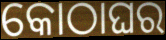
କୋଠାଘର